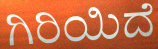
ಗಿರಿಯಿದೆ